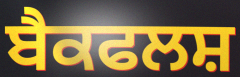
ਬੈਕਫਲਸ਼